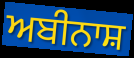
ਅਬੀਨਾਸ਼